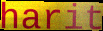
harit